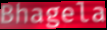
Bhagela